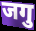
जगु